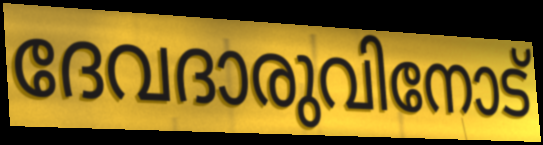
ദേവദാരുവിനോട്